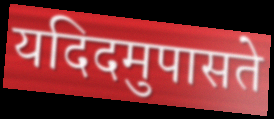
यदिदमुपासते